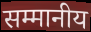
सम्मानीय